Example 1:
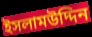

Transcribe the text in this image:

ইসলামউদ্দিন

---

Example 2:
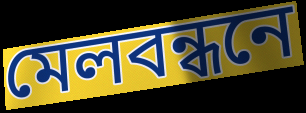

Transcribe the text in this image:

মেলবন্ধনে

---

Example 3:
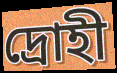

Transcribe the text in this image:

দ্রোহী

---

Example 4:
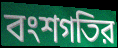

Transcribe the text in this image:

বংশগতির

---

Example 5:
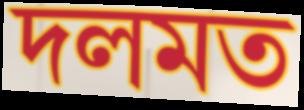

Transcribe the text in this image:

দলমত